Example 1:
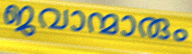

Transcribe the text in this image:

ജവാന്മാരും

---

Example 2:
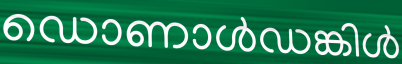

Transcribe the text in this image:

ഡൊണാൾഡങ്കിൾ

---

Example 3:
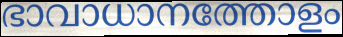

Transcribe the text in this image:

ഭാവാധാനത്തോളം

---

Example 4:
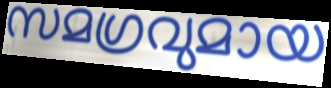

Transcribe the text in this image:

സമഗ്രവുമായ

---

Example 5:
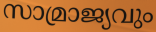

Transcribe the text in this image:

സാമ്രാജ്യവും